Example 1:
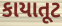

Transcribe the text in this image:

કાયાતૂટ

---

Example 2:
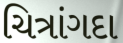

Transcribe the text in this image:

ચિત્રાંગદા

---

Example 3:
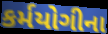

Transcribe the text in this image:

કર્મયોગીના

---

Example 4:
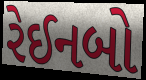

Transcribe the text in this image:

રેઈનબો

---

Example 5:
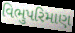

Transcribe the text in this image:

વિભુપરિમાણ